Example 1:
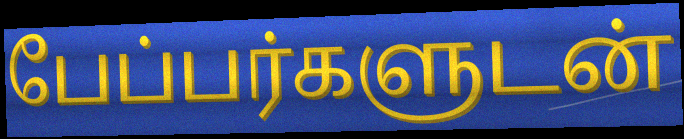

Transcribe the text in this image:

பேப்பர்களுடன்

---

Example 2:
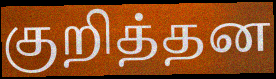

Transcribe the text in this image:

குறித்தன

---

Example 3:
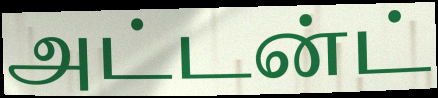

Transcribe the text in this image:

அட்டன்ட்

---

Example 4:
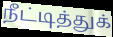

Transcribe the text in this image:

நீட்டித்துக்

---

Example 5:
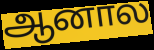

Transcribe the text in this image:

ஆனால